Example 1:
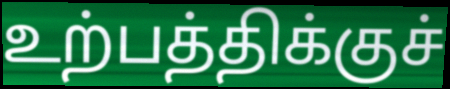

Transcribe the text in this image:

உற்பத்திக்குச்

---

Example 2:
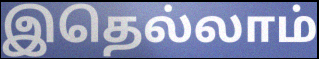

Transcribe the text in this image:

இதெல்லாம்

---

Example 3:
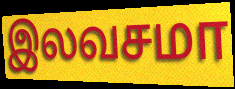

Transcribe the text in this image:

இலவசமா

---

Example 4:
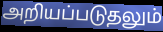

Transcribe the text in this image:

அறியப்படுதலும்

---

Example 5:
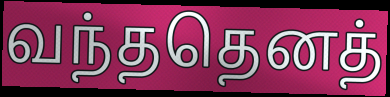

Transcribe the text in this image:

வந்ததெனத்